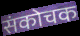
संकोचक